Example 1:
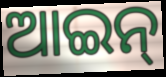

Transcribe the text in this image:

ଆଇନ୍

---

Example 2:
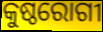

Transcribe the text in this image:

କୁଷ୍ଠରୋଗୀ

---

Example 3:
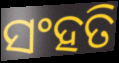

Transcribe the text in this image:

ସଂହତି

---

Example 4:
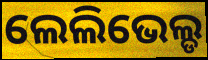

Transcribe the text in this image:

ଲେଲିଭେଲ୍ଡ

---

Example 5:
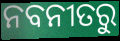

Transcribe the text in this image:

ନବନୀତରୁ